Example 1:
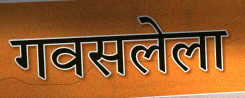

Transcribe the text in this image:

गवसलेला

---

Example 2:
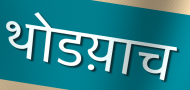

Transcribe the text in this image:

थोडय़ाच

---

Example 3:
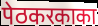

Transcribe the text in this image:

पेठकरकाका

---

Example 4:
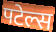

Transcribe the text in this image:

पटेल्स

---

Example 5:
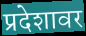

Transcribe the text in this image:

प्रदेशावर